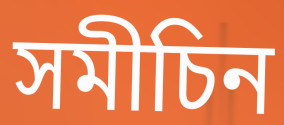
সমীচিন